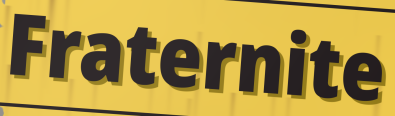
Fraternite